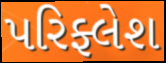
પરિફ્લેશ